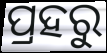
ପ୍ରହରୁ